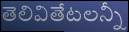
తెలివితేటలన్నీ